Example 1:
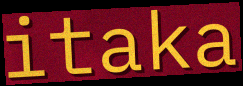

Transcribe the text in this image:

itaka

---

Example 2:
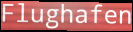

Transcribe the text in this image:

Flughafen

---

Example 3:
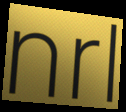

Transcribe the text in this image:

nrl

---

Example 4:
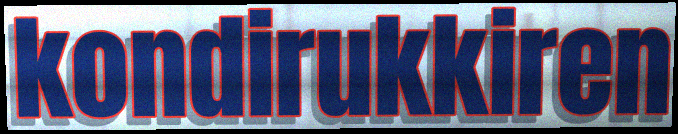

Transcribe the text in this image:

kondirukkiren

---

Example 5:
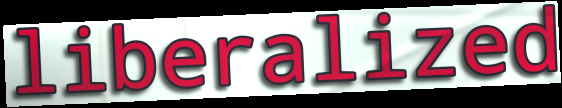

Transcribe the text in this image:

liberalized